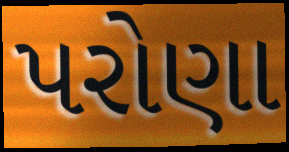
પરોણા